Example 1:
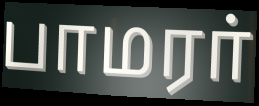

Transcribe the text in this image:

பாமரர்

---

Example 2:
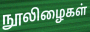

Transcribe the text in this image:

நூலிழைகள்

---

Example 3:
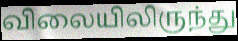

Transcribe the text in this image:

விலையிலிருந்து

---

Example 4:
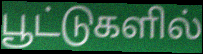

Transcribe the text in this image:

பூட்டுகளில்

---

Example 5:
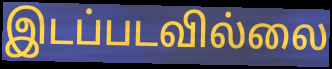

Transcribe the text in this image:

இடப்படவில்லை